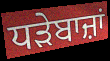
ਧੜੇਬਾਜ਼ਾਂ